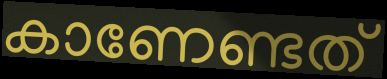
കാണേണ്ടത്